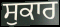
ਸੁਕਾਰ